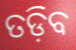
ତଡ଼ିବ